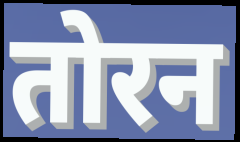
तोरन